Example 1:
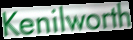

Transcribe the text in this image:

Kenilworth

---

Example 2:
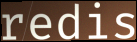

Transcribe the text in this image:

redis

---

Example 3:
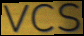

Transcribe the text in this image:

vcs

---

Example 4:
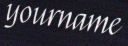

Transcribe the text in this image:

yourname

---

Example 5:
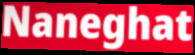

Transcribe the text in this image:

Naneghat